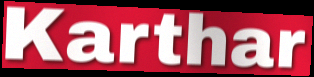
Karthar